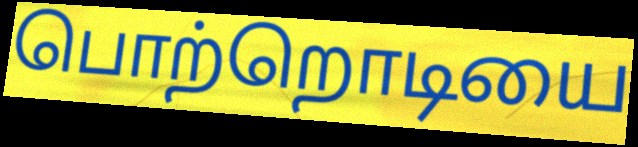
பொற்றொடியை